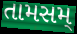
તામસમ્